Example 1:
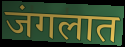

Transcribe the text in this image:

जंगलात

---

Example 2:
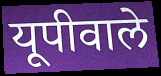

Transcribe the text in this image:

यूपीवाले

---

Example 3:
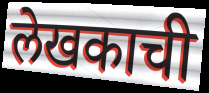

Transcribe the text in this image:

लेखकाची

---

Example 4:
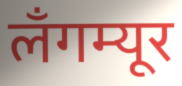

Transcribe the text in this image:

लँगम्यूर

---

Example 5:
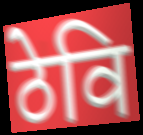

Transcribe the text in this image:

ठेवि